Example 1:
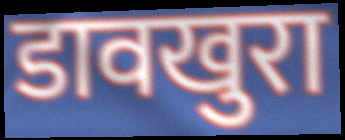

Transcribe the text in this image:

डावखुरा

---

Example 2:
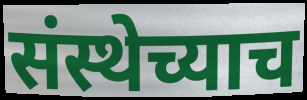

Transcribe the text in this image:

संस्थेच्याच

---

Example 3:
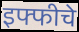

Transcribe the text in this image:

इफ्फीचे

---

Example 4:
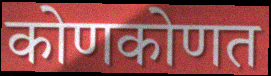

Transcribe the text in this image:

कोणकोणत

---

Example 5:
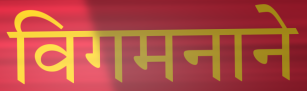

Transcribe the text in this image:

विगमनाने